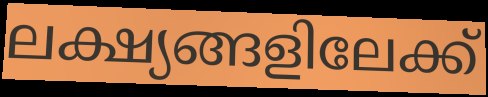
ലക്ഷ്യങ്ങളിലേക്ക്